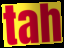
tah